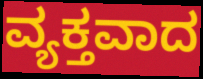
ವ್ಯಕ್ತವಾದ